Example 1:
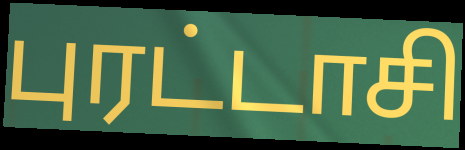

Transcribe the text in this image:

புரட்டாசி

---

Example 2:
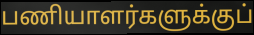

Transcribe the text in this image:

பணியாளர்களுக்குப்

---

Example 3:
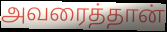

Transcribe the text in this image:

அவரைத்தான்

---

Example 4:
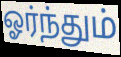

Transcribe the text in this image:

ஓர்ந்தும்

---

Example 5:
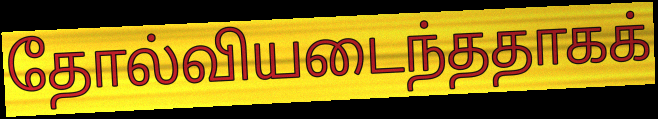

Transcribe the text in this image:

தோல்வியடைந்ததாகக்